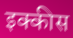
इक्कीस